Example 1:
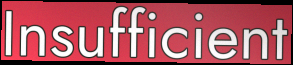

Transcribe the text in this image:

Insufficient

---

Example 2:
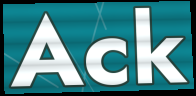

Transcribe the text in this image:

Ack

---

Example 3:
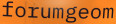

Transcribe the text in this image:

forumgeom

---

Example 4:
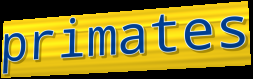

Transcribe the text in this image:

primates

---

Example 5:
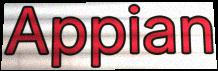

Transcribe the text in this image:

Appian